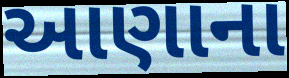
આણાના